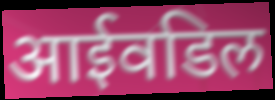
आईवडिल